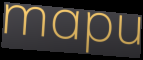
mapu